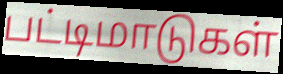
பட்டிமாடுகள்